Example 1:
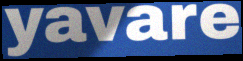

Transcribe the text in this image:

yavare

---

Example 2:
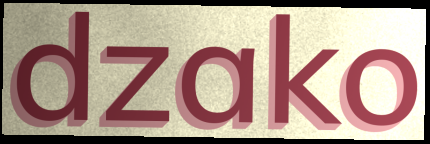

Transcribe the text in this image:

dzako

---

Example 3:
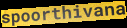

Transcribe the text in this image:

spoorthivana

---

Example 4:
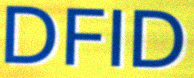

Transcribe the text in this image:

DFID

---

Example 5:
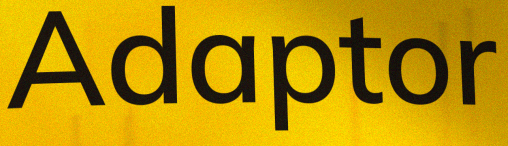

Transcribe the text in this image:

Adaptor